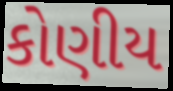
કોણીય